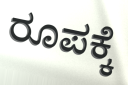
ರೂಪಕ್ಕೆ